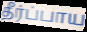
தீர்ப்பாய